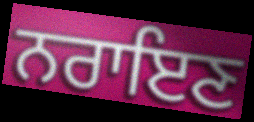
ਨਰਾਇਣ